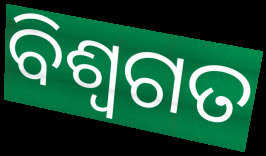
ବିଶ୍ଵଗତ